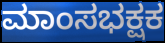
ಮಾಂಸಭಕ್ಷಕ